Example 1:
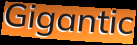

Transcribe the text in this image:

Gigantic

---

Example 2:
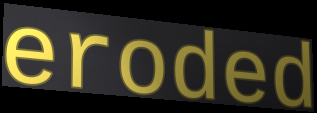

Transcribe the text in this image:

eroded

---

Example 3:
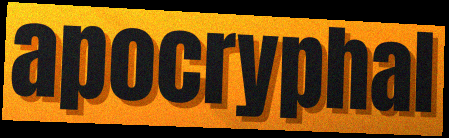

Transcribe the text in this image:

apocryphal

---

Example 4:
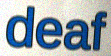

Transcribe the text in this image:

deaf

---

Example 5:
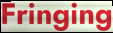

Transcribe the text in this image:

Fringing